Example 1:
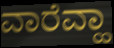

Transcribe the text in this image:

ವಾರೆವ್ಹಾ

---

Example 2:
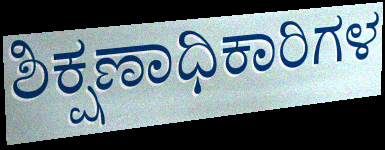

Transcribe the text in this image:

ಶಿಕ್ಷಣಾಧಿಕಾರಿಗಳ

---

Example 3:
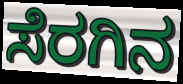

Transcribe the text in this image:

ಸೆರಗಿನ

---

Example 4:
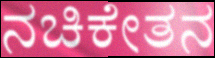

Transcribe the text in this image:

ನಚಿಕೇತನ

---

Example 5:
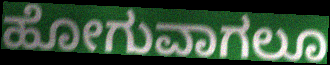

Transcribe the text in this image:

ಹೋಗುವಾಗಲೂ